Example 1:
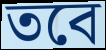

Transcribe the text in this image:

তবে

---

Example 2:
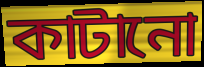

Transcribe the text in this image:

কাটানো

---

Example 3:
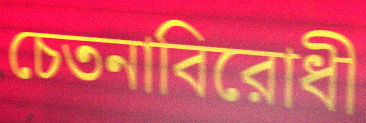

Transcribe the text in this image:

চেতনাবিরোধী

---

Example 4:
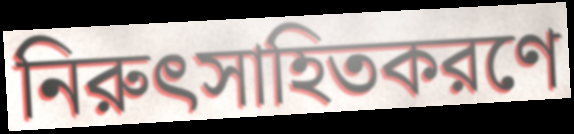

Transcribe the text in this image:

নিরুৎসাহিতকরণে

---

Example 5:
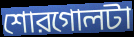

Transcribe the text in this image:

শোরগোলটা